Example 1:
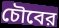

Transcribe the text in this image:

চৌবের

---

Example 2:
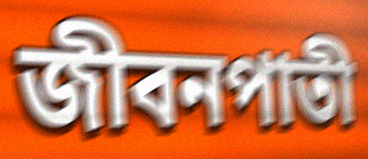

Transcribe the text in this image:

জীবনপাতী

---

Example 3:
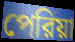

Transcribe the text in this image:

পেরিয়া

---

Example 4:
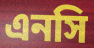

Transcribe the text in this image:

এনসি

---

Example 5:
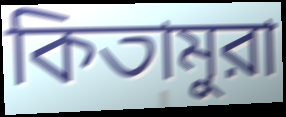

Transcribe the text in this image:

কিতামুরা